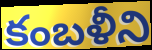
కంబళీని